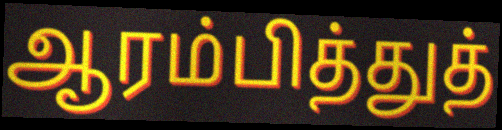
ஆரம்பித்துத்